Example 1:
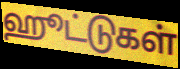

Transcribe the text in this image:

ஹூட்டுகள்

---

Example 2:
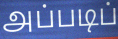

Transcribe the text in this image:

அப்படிப்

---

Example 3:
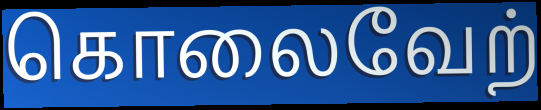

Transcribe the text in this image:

கொலைவேற்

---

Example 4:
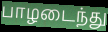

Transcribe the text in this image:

பாழடைந்து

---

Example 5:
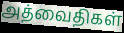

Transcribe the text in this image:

அத்வைதிகள்